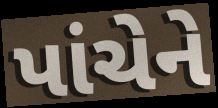
પાંચેને